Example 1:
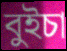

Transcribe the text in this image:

বুইচা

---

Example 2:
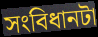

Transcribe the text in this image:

সংবিধানটা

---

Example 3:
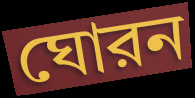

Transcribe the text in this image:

ঘোরন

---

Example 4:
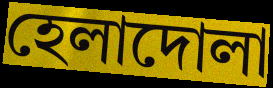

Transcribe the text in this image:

হেলাদোলা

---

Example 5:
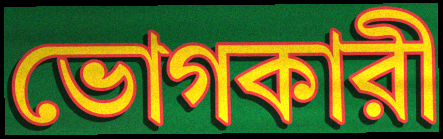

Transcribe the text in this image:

ভোগকারী